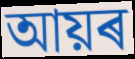
আয়ৰ